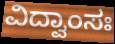
ವಿದ್ವಾಂಸಃ